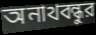
অনাথবন্ধুর